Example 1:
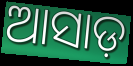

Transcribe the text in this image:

ଆସାଡ଼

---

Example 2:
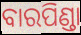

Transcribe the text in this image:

ବାରପିଣ୍ଡା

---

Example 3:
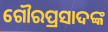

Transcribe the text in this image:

ଗୌରପ୍ରସାଦଙ୍କ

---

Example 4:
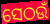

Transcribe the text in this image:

ସେଠଉଁ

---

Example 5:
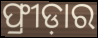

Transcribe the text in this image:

ଫ୍ରୀଡ଼ାର